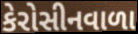
કેરોસીનવાળા